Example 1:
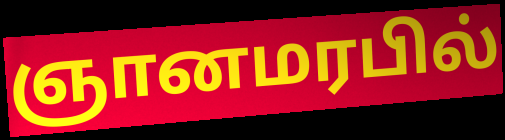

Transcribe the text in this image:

ஞானமரபில்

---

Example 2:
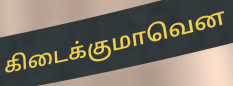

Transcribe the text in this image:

கிடைக்குமாவென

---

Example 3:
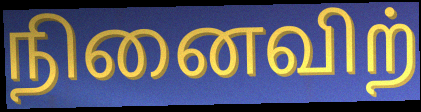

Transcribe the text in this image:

நினைவிற்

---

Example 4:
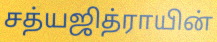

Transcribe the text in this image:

சத்யஜித்ராயின்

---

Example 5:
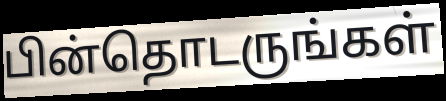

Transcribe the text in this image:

பின்தொடருங்கள்